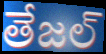
తేజల్